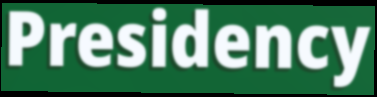
Presidency